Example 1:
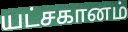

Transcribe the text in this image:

யட்சகானம்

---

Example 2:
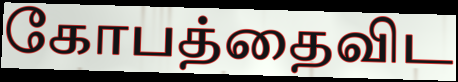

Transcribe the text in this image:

கோபத்தைவிட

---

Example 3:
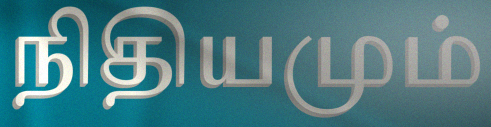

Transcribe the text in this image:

நிதியமும்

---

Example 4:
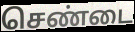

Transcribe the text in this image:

செண்டை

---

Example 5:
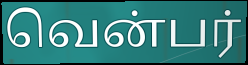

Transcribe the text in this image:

வென்பர்